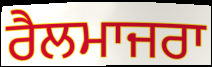
ਰੈਲਮਾਜਰਾ